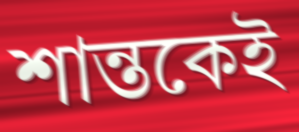
শান্তকেই